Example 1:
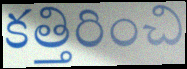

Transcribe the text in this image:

కత్తిరించి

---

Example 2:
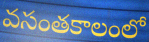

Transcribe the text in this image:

వసంతకాలంలో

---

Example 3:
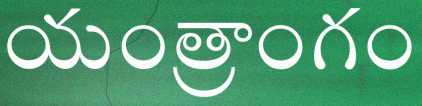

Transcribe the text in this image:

యంత్రాంగం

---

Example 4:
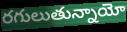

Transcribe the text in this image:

రగులుతున్నాయో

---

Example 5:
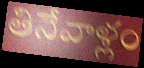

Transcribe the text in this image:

తినేవాళ్లం